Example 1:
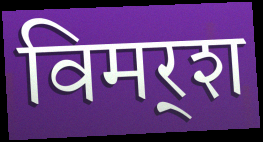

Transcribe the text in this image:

विमर्श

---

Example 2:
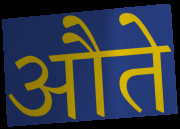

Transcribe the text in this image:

औते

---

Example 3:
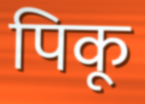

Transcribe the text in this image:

पिकू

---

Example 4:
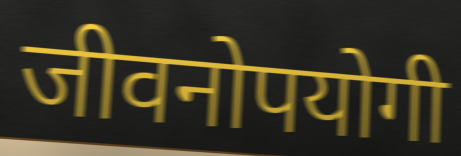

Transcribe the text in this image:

जीवनोपयोगी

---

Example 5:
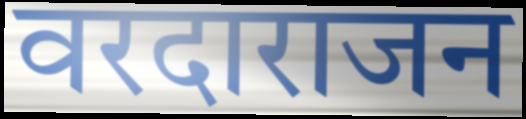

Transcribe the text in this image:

वरदाराजन